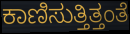
ಕಾಣಿಸುತ್ತಿತ್ತಂತೆ